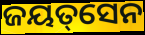
ଜୟତ୍‌ସେନ